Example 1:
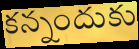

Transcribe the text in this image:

కన్నందుకు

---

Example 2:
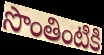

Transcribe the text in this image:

సొంతింటికి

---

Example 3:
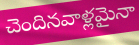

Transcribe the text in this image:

చెందినవాళ్లమైనా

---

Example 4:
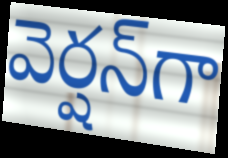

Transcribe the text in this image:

వెర్షన్‌గా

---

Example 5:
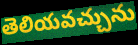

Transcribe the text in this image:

తెలియవచ్చును